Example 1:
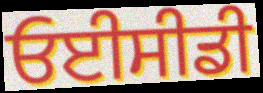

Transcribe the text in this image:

ਓਈਸੀਡੀ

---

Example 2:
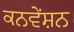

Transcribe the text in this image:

ਕਨਵੇਂਸ਼ਨ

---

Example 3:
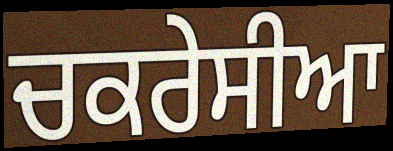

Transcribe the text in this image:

ਚਕਰੇਸੀਆ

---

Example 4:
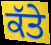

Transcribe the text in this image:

ਕੱਤੇ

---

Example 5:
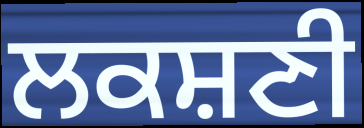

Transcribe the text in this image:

ਲਕਸ਼ਣੀ